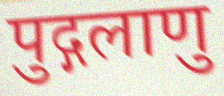
पुद्गलाणु